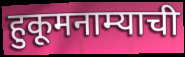
हुकूमनाम्याची